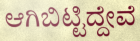
ಆಗಿಬಿಟ್ಟಿದ್ದೇವೆ